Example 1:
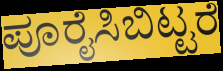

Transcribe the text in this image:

ಪೂರೈಸಿಬಿಟ್ಟರೆ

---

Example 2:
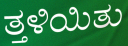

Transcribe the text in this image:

ತ್ತಳಿಯಿತು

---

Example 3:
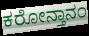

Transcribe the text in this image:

ಕರೋನ್ತಾನಂ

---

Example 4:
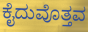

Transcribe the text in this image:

ಕೈದುವೊತ್ತವ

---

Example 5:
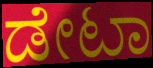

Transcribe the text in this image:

ಡೇಟಾ